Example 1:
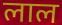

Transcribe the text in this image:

लाल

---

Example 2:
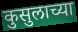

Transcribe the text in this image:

कुसुलाच्या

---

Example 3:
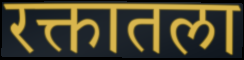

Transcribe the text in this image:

रक्तातला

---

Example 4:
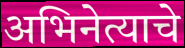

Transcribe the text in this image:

अभिनेत्याचे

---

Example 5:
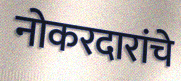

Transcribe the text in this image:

नोकरदारांचे